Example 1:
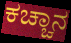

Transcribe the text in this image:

ಕಚ್ಚಾನ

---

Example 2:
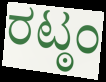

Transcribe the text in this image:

ರಟ್ಠಂ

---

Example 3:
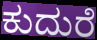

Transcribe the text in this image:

ಕುದುರೆ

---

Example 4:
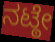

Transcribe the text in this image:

ನಟ್ಠೇ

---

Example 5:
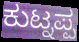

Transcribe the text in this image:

ಕುಟ್ನಪ್ಪ